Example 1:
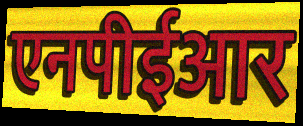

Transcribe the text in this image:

एनपीईआर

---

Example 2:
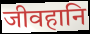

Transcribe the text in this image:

जीवहानि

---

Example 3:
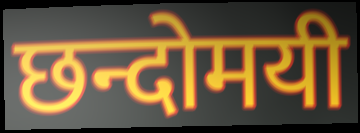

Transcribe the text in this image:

छन्दोमयी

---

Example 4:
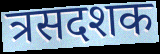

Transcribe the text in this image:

त्रसदशक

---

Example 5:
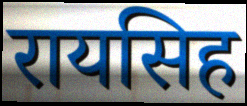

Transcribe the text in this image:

रायसिह